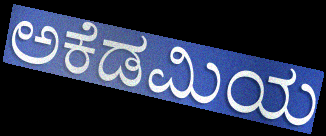
ಅಕೆಡಮಿಯ